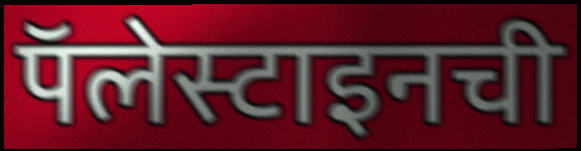
पॅलेस्टाइनची